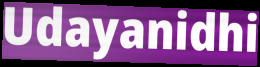
Udayanidhi